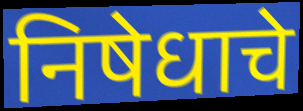
निषेधाचे